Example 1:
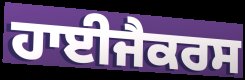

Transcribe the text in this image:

ਹਾਈਜੈਕਰਸ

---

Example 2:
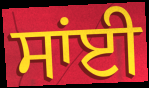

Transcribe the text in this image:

ਸਾਂਈ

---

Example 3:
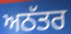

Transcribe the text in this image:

ਅਠੱਤਰ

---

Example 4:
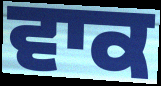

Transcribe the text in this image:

ਵਾਕ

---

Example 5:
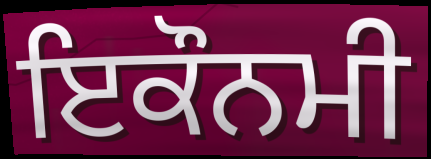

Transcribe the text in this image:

ਇਕੌਨਮੀ